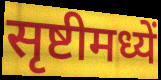
सृष्टीमध्यें